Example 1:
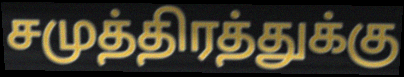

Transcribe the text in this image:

சமுத்திரத்துக்கு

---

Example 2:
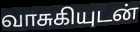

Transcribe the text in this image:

வாசுகியுடன்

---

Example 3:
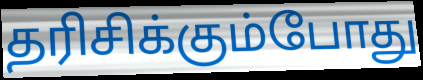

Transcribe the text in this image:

தரிசிக்கும்போது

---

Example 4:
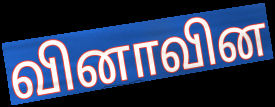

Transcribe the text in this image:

வினாவின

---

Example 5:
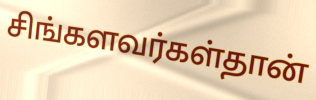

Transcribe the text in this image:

சிங்களவர்கள்தான்